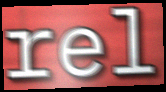
rel